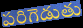
పరిగెడుతు